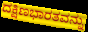
ದಕ್ಷಿಣಭಾರತವನ್ನು